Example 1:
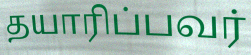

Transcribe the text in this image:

தயாரிப்பவர்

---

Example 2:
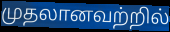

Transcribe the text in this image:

முதலானவற்றில்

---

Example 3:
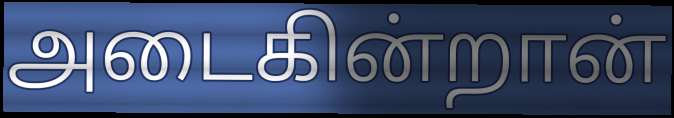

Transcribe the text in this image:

அடைகின்றான்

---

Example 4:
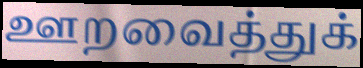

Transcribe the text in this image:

ஊறவைத்துக்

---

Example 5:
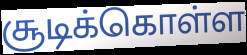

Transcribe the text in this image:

சூடிக்கொள்ள